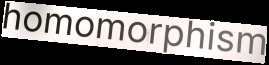
homomorphism